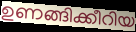
ഉണങ്ങിക്കീറിയ